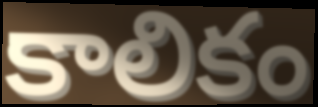
కాలికం